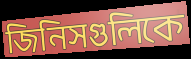
জিনিসগুলিকে